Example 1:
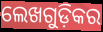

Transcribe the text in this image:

ଲେଖଗୁଡ଼ିକର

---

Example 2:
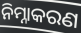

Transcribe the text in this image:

ନିମ୍ନାକରଣ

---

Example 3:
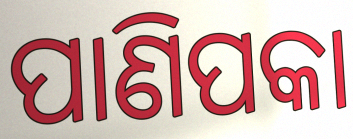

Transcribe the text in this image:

ପାଣିପକା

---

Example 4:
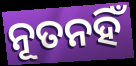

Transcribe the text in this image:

ନୂତନହିଁ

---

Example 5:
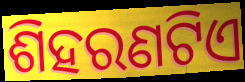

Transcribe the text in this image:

ଶିହରଣଟିଏ